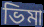
ভিমা